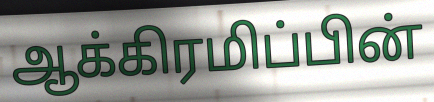
ஆக்கிரமிப்பின்